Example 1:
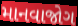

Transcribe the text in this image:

માનવાજોગ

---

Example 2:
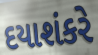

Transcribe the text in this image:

દયાશંકરે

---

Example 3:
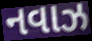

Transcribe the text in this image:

નવાઝ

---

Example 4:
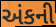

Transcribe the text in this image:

અંકની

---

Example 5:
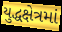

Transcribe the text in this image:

યુદ્ધક્ષેત્રમાં